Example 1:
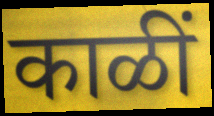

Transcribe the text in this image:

काळीं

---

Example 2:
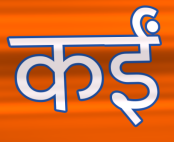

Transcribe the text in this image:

कईं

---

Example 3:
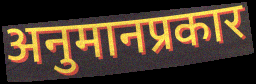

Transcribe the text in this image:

अनुमानप्रकार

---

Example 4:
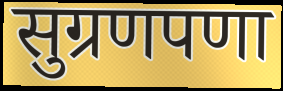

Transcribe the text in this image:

सुग्रणपणा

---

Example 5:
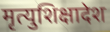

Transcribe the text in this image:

मृत्युशिक्षादेश